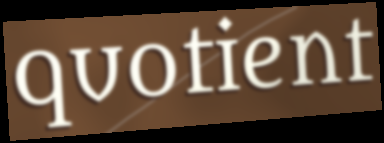
quotient